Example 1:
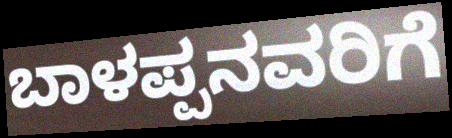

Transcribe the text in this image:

ಬಾಳಪ್ಪನವರಿಗೆ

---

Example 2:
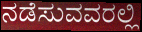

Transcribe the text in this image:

ನಡೆಸುವವರಲ್ಲಿ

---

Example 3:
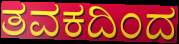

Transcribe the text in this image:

ತವಕದಿಂದ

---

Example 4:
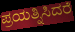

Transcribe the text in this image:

ಪ್ರಯತ್ನಿಸಿದರೆ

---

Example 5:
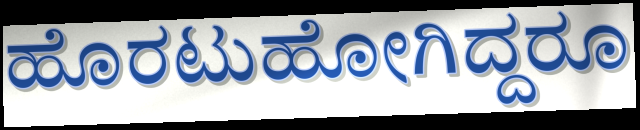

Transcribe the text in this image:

ಹೊರಟುಹೋಗಿದ್ದರೂ